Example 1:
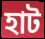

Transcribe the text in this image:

হাট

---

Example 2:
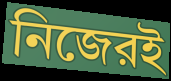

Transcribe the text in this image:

নিজেরই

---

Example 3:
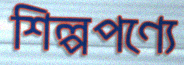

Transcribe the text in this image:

শিল্পপণ্যে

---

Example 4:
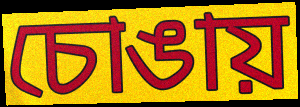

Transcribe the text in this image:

চোঙায়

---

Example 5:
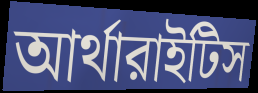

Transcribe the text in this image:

আর্থারাইটিস